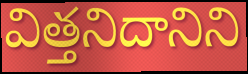
విత్తనిదానిని